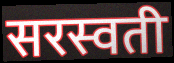
सरस्वती